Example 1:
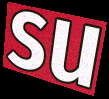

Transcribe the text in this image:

su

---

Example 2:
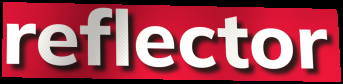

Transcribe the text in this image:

reflector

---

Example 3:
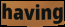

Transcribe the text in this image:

having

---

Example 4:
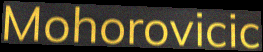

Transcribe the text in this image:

Mohorovicic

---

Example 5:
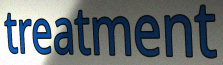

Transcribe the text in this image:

treatment